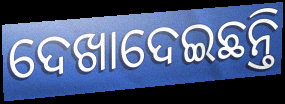
ଦେଖାଦେଇଛନ୍ତି